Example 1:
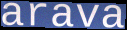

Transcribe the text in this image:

arava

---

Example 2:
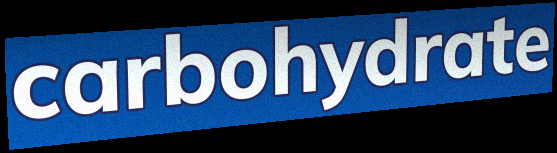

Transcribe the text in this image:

carbohydrate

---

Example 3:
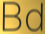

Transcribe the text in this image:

Bd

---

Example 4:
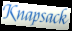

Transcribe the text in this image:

Knapsack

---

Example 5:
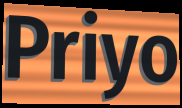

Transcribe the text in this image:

Priyo